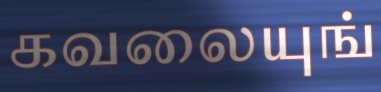
கவலையுங்